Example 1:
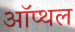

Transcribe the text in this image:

ऑप्थल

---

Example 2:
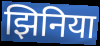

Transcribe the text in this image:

झिनिया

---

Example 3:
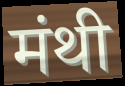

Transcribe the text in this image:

मंथी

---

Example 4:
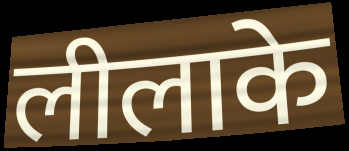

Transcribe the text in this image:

लीलाके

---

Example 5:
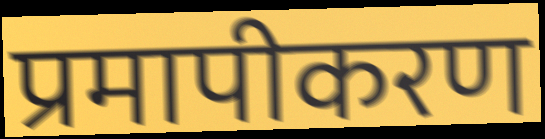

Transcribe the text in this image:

प्रमापीकरण